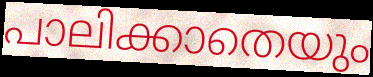
പാലിക്കാതെയും